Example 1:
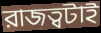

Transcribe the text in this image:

রাজত্বটাই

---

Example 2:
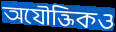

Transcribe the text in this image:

অযৌক্তিকও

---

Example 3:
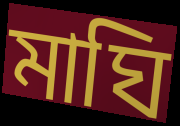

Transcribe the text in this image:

মাঘি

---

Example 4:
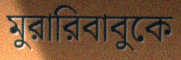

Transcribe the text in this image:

মুরারিবাবুকে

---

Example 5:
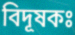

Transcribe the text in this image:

বিদূষকঃ